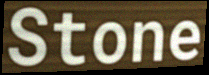
Stone